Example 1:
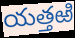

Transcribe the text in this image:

యత్తఱి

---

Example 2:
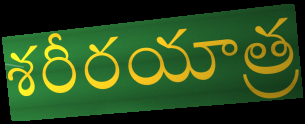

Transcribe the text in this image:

శరీరయాత్ర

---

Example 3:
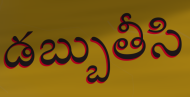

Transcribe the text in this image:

డబ్బుతీసి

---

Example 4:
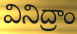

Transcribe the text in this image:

వినిద్రాం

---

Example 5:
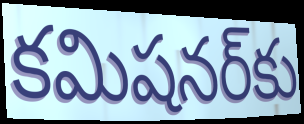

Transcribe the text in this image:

కమిషనర్‌కు